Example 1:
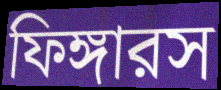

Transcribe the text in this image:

ফিঙ্গারস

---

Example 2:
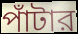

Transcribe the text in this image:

পাঁটার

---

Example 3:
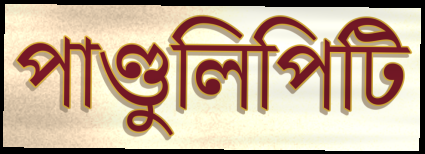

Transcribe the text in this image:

পাণ্ডুলিপিটি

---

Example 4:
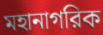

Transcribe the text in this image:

মহানাগরিক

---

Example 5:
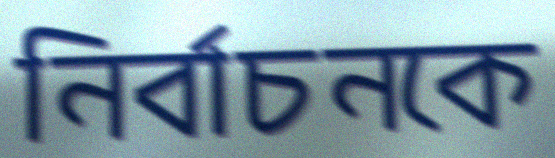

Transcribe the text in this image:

নির্বাচনকে